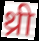
थ्री